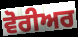
ਵੋਰੀਅਰ